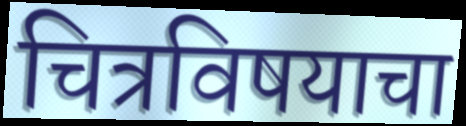
चित्रविषयाचा